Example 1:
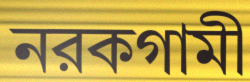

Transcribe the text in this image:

নরকগামী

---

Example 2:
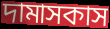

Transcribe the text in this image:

দামাসকাস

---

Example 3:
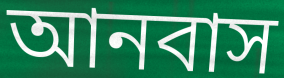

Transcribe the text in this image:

আনবাস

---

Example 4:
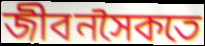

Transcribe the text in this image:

জীবনসৈকতে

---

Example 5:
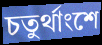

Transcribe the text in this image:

চতুর্থাংশে